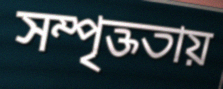
সম্পৃক্ততায়